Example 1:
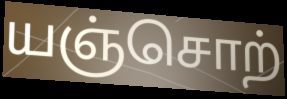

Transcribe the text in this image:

யஞ்சொற்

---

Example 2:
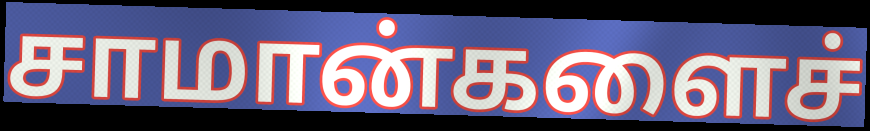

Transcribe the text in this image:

சாமான்களைச்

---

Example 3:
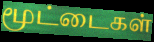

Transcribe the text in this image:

மூட்டைகள்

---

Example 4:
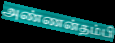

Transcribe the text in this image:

அண்ணன்தம்பி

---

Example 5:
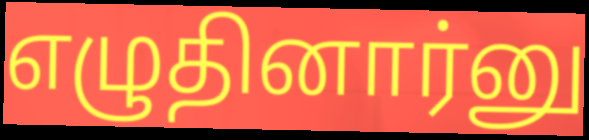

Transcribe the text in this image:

எழுதினார்னு